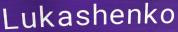
Lukashenko